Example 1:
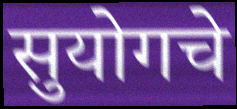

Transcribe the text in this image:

सुयोगचे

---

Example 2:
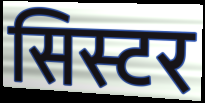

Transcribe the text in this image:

सिस्टर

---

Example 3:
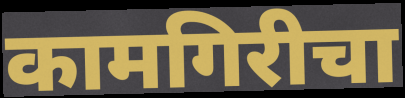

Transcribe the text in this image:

कामगिरीचा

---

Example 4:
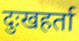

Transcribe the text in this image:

दुःखहर्ता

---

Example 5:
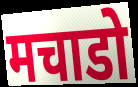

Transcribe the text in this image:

मचाडो